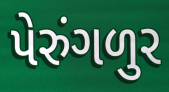
પેરુંગળુર